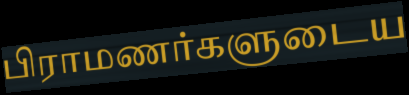
பிராமணர்களுடைய